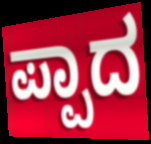
ಪ್ಪಾದ